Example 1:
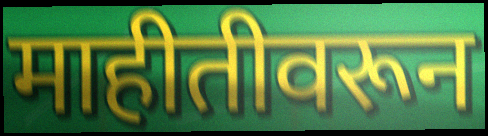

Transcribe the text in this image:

माहीतीवरून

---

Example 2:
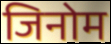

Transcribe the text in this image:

जिनोम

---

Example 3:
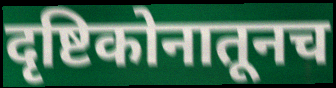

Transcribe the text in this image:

दृष्टिकोनातूनच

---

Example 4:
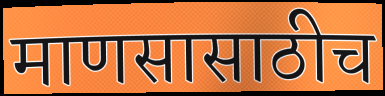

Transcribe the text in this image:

माणसासाठीच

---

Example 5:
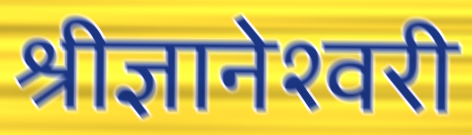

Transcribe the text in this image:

श्रीज्ञानेश्वरी